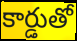
కార్డుతో